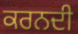
ਕਰਨਦੀ